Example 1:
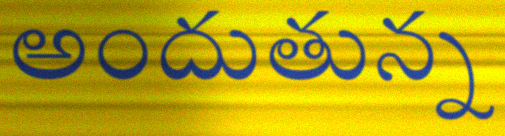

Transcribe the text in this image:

అందుతున్న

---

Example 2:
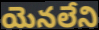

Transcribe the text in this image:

యెనలేని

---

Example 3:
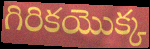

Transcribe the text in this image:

గిరికయొక్క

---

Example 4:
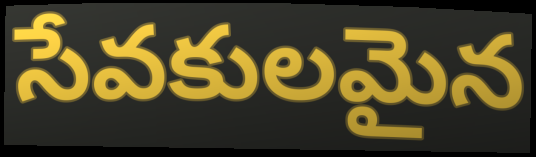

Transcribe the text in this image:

సేవకులమైన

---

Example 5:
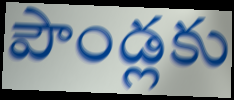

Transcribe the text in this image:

పౌండ్లకు